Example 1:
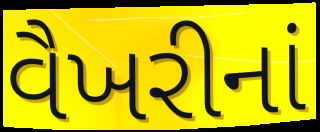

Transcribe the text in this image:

વૈખરીનાં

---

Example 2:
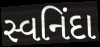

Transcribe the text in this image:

સ્વનિંદા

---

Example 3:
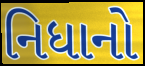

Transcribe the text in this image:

નિધાનો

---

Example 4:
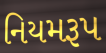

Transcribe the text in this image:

નિયમરૂપ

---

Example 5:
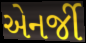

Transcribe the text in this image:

એનર્જી